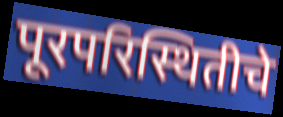
पूरपरिस्थितीचे